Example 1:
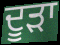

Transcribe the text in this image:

ਦੂੜਾ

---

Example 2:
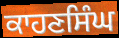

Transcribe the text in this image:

ਕਾਹਣਸਿੰਘ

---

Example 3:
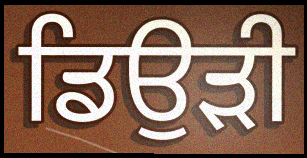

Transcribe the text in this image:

ਡਿਉੜੀ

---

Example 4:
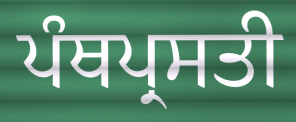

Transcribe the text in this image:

ਪੰਥਪ੍ਰਸਤੀ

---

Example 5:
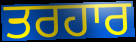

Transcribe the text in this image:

ਤਰਹਾਰ